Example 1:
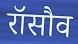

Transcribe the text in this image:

रॉसौव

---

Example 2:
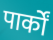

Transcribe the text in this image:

पार्कों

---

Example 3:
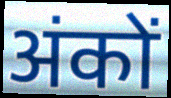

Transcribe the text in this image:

अंकों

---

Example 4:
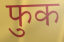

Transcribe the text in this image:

फुक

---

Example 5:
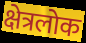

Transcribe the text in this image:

क्षेत्रलोक